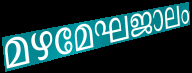
മഴമേഘജാലം